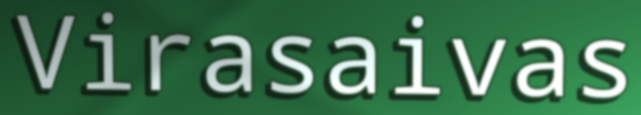
Virasaivas